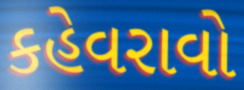
કહેવરાવો